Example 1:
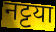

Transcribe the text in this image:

नट्टया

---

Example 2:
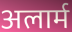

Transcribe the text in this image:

अलार्म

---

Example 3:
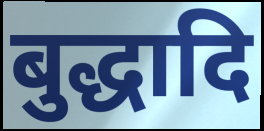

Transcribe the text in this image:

बुद्धादि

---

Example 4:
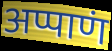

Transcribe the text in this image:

अप्पाणं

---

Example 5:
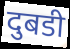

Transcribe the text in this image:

दुबडी